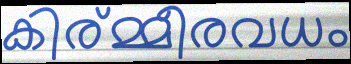
കിര്മ്മീരവധം